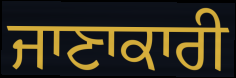
ਜਾਣਾਕਾਰੀ